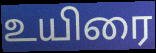
உயிரை